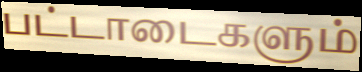
பட்டாடைகளும்